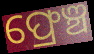
ଫ୍ରେଞ୍ଚ